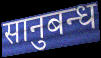
सानुबन्ध